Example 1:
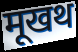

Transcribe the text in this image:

मूखथ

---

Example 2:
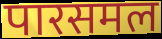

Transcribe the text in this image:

पारसमल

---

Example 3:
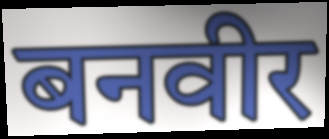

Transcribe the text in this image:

बनवीर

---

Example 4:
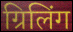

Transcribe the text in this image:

ग्रिलिंग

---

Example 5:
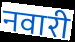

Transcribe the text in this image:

नवारी